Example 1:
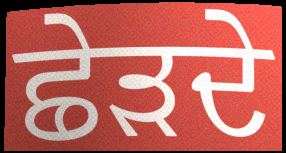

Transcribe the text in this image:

ਛੇੜਦੇ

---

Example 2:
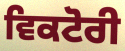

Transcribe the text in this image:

ਵਿਕਟੋਰੀ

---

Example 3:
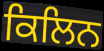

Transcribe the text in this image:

ਕਿਲਿਨ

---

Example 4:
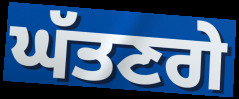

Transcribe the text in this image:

ਘੱਤਣਗੇ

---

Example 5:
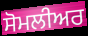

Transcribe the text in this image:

ਸੋਮਲੀਅਰ